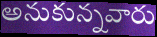
అనుకున్నవారు